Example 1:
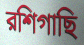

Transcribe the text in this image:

রশিগাছি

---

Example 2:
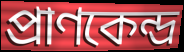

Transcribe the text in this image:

প্রাণকেন্দ্র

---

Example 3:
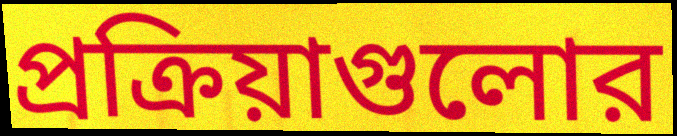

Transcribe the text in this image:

প্রক্রিয়াগুলোর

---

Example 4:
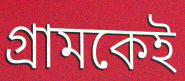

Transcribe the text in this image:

গ্রামকেই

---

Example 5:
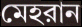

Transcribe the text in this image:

মেহরান